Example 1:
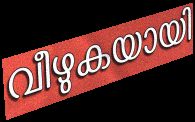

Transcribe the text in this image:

വീഴുകയായി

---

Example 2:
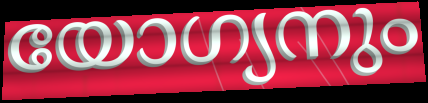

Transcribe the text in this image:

യോഗ്യനും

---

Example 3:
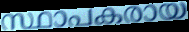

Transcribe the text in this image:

സ്ഥാപകരായ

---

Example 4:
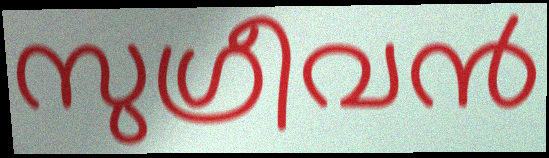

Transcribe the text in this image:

സുഗ്രീവൻ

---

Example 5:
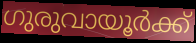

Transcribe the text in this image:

ഗുരുവായൂർക്ക്